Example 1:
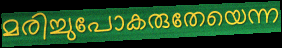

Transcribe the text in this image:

മരിച്ചുപോകരുതേയെന്ന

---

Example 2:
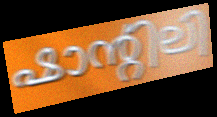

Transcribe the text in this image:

ഷാന്റിലി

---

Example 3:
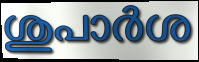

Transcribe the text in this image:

ശുപാർശ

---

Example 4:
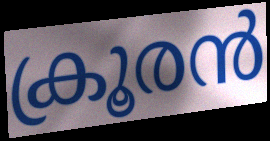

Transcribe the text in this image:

ക്രൂരൻ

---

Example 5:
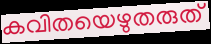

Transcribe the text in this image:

കവിതയെഴുതരുത്